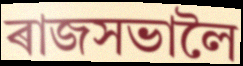
ৰাজসভালৈ